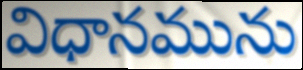
విధానమును